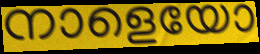
നാളെയോ